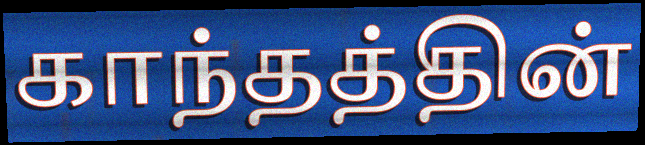
காந்தத்தின்